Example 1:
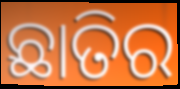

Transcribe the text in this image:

ଛାତିର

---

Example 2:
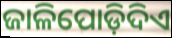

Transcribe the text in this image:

ଜାଳିପୋଡ଼ିଦିଏ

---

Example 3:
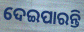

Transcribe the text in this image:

ଦେଇପାରନ୍ତି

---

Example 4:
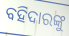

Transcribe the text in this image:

ବହିଦାରଙ୍କୁ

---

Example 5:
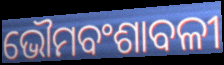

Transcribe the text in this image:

ଭୌମବଂଶାବଳୀ